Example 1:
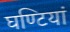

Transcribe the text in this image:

घण्टियां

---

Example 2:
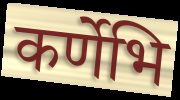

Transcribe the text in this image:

कर्णेभि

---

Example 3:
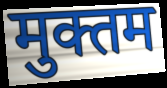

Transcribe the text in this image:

मुक्तम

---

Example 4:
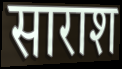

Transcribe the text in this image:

साराश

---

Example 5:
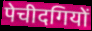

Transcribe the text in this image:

पेचीदगियों